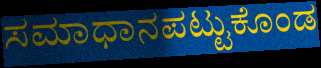
ಸಮಾಧಾನಪಟ್ಟುಕೊಂಡ